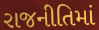
રાજનીતિમાં